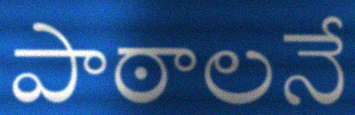
పాఠాలనే